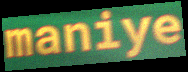
maniye